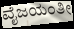
ವೈಜಯಂತೀ